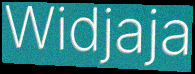
Widjaja